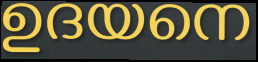
ഉദയനെ